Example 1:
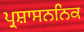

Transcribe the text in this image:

ਪ੍ਰਸ਼ਾਸਨਨਿਕ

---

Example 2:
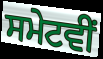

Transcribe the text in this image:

ਸਮੇਟਵੀਂ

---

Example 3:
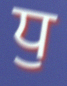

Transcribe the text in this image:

ਧੁ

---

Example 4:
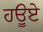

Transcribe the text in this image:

ਹਊਏ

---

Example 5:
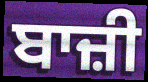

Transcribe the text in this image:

ਬਾਜ਼ੀ